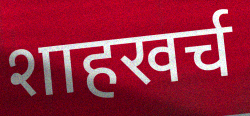
शाहखर्च